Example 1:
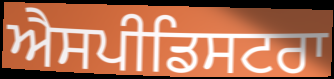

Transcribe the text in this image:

ਐਸਪੀਡਿਸਟਰਾ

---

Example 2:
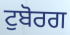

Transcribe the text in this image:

ਟੁਬੋਰਗ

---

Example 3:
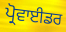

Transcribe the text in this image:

ਪ੍ਰੋਵਾਈਡਰ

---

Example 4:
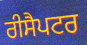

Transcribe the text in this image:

ਰੀਸੈਪਟਰ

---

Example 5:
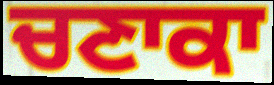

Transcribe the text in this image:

ਚਣਾਕਾ